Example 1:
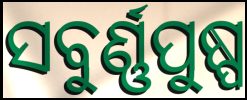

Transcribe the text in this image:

ସବୁର୍ଣ୍ଣପୁଷ୍ପ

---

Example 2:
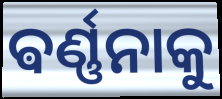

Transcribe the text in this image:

ଵର୍ଣ୍ଣନାକୁ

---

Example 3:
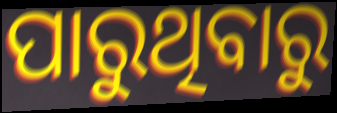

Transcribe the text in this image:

ପାରୁଥିବାରୁ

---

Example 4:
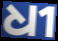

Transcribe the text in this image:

ଧୀ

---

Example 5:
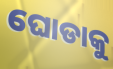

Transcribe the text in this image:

ଘୋଡାକୁ